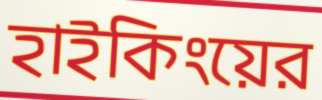
হাইকিংয়ের